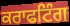
ਕਰਾਫਟਿੰਗ